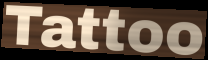
Tattoo